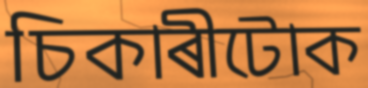
চিকাৰীটোক